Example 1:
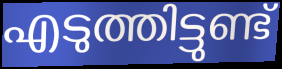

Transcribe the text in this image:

എടുത്തിട്ടുണ്ട്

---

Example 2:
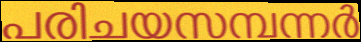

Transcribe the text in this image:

പരിചയസമ്പന്നർ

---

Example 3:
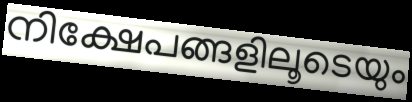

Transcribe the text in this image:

നിക്ഷേപങ്ങളിലൂടെയും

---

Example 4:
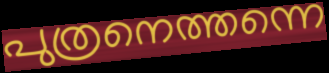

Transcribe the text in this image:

പുത്രനെത്തന്നെ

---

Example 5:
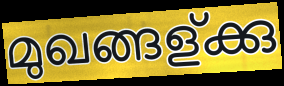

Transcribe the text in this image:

മുഖങ്ങള്ക്കു